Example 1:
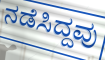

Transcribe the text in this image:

ನಡೆಸಿದ್ದವು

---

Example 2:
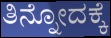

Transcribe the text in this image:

ತಿನ್ನೋದಕ್ಕೆ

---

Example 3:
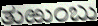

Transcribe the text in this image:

ತುಱುಂಬು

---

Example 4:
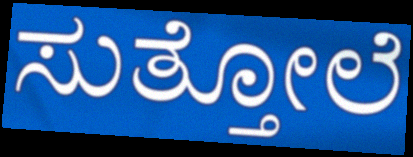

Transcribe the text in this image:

ಸುತ್ತೋಲೆ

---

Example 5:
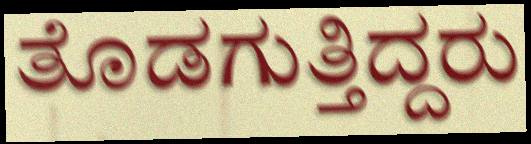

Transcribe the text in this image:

ತೊಡಗುತ್ತಿದ್ದರು